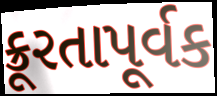
ક્રૂરતાપૂર્વક